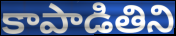
కాపాడితిని